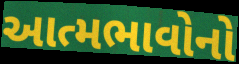
આત્મભાવોનો